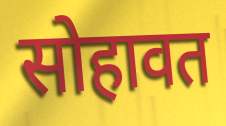
सोहावत